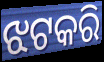
ଝଟକରି